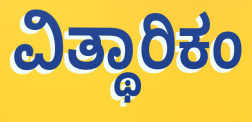
ವಿತ್ಥಾರಿಕಂ